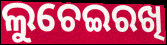
ଲୁଚେଇରଖି